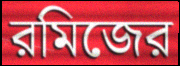
রমিজের